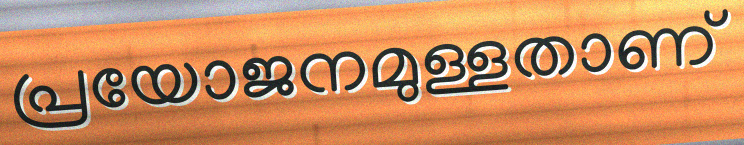
പ്രയോജനമുള്ളതാണ്